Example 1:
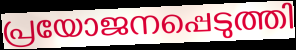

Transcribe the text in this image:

പ്രയോജനപ്പെടുത്തി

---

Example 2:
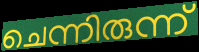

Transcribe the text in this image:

ചെന്നിരുന്ന്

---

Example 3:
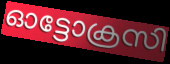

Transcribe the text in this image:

ഓട്ടോക്രസി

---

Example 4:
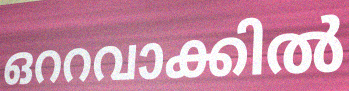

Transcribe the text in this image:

ഒററവാക്കിൽ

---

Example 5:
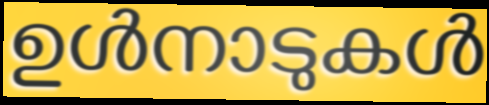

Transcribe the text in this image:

ഉൾനാടുകൾ